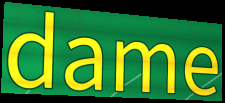
dame